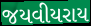
જયવીયરાય